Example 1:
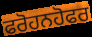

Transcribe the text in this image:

ਫਰੋਹਨਹੋਫਰ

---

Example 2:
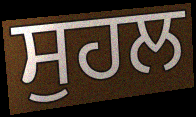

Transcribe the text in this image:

ਸੁਹਲ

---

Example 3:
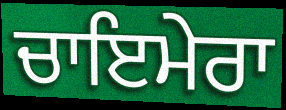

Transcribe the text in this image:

ਚਾਇਮੇਰਾ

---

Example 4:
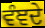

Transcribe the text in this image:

ਵੰਞਦੇ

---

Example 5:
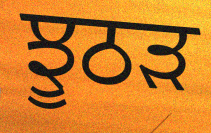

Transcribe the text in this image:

ਝੂਠੜ